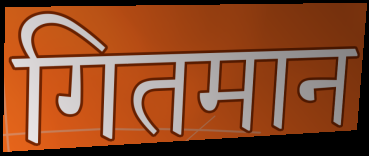
गितमान